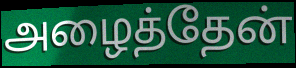
அழைத்தேன்